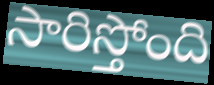
సారిస్తోంది